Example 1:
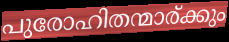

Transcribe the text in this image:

പുരോഹിതന്മാര്ക്കും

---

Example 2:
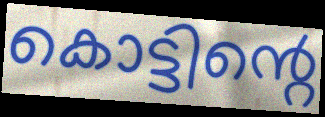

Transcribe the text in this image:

കൊട്ടിന്റെ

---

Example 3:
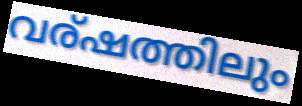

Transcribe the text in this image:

വര്ഷത്തിലും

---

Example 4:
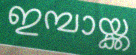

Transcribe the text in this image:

ഇമ്പായ്ക്ക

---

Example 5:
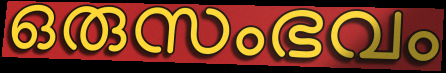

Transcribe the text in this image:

ഒരുസംഭവം